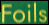
Foils